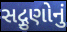
સદ્ગુણોનું